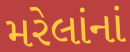
મરેલાંનાં